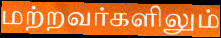
மற்றவர்களிலும்